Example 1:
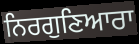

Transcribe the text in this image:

ਨਿਰਗੁਣਿਆਰਾ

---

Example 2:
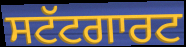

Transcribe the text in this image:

ਸਟੱਟਗਾਰਟ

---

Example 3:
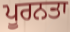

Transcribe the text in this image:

ਪੂਰਨਤਾ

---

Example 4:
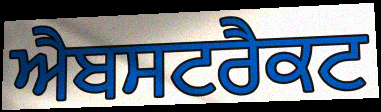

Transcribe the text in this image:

ਐਬਸਟਰੈਕਟ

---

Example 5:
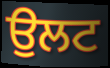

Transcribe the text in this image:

ਉਲਟ